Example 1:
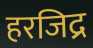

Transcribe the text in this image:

हरजिद्र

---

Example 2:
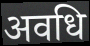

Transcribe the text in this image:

अवधि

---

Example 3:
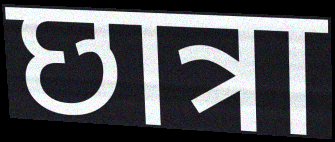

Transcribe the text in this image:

छात्रा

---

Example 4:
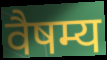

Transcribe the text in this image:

वैषम्य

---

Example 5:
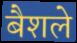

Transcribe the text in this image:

बैशले